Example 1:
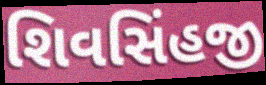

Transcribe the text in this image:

શિવસિંહજી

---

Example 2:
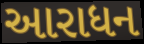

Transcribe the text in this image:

આરાધન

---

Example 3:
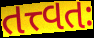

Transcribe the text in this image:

તત્ત્વતઃ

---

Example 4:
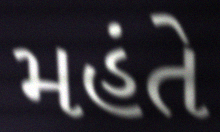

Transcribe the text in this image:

મહંતે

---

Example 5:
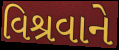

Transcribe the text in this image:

વિશ્રવાને